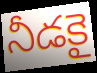
నీడకై